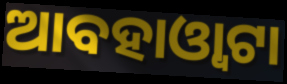
ଆବହାଓ୍ୱାଟା